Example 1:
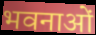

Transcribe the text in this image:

भवनाओं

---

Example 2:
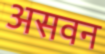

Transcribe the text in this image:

असवन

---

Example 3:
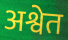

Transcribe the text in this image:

अश्वेत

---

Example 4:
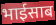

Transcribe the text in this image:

भाईसाब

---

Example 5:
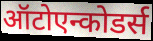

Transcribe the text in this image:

ऑटोएन्कोडर्स